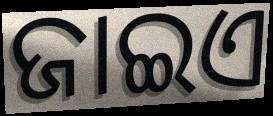
ଜାଇଏ